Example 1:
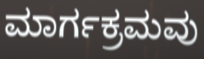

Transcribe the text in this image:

ಮಾರ್ಗಕ್ರಮವು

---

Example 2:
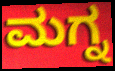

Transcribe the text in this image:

ಮಗ್ನ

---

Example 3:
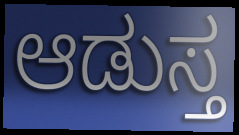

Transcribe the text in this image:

ಆಡುಸ್ತ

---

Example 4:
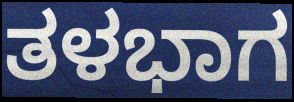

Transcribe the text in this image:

ತಳಭಾಗ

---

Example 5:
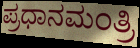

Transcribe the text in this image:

ಪ್ರಧಾನಮಂತ್ರಿ